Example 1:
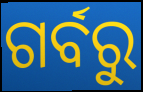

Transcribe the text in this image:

ଗର୍ବରୁ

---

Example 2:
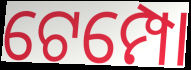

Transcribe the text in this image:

ଟେମ୍ପୋ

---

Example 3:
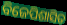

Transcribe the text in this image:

ବିଜେପିଶାସିତ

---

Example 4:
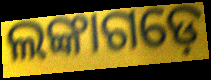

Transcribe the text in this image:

ଲଙ୍କାଗଡ଼େ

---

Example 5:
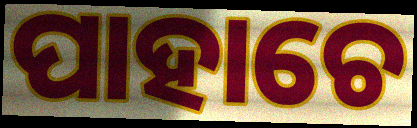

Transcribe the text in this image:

ପାହାଚେ